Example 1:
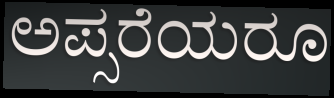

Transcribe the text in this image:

ಅಪ್ಸರೆಯರೂ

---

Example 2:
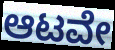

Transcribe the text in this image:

ಆಟವೇ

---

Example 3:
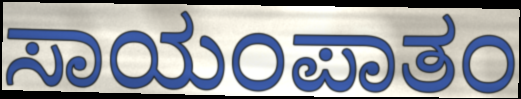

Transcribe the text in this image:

ಸಾಯಂಪಾತಂ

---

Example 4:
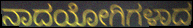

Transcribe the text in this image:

ನಾದಯೋಗಿಗಳಾದ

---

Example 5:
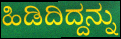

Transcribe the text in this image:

ಹಿಡಿದಿದ್ದನ್ನು